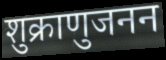
शुक्राणुजनन